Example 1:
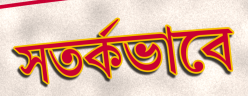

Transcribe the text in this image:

সতর্কভাবে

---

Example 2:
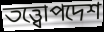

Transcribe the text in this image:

তত্ত্বোপদেশ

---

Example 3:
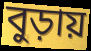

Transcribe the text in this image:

বুড়ায়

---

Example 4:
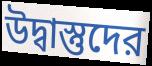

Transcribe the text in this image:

উদ্বাস্তুদের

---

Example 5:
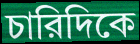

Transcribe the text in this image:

চারিদিকে